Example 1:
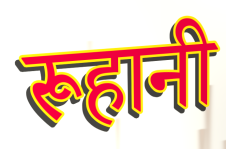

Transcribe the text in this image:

रूहानी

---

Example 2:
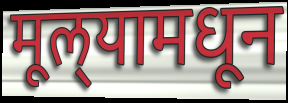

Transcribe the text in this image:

मूल्यामधून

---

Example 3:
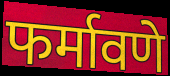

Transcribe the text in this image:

फर्मावणे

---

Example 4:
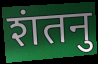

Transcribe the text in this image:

शंतनु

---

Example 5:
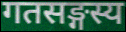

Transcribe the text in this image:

गतसङ्गस्य